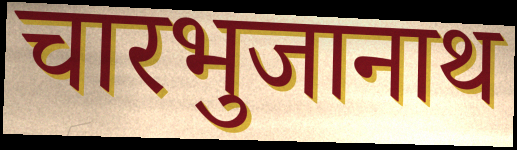
चारभुजानाथ